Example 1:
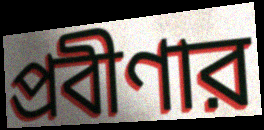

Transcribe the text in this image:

প্রবীণার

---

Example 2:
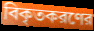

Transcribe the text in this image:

বিকৃতকরণের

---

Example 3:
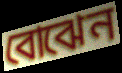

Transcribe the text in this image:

বোঝেন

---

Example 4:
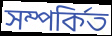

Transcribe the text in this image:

সম্পর্কিত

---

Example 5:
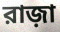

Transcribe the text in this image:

রাজ়া